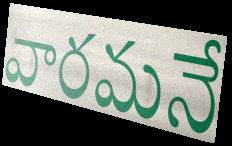
వారమనే